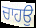
ਚਾਹਉ